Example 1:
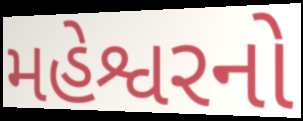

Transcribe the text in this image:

મહેશ્વરનો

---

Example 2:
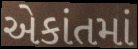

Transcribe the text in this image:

એકાંતમાં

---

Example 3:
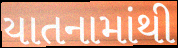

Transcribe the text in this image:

યાતનામાંથી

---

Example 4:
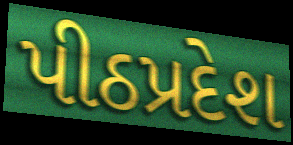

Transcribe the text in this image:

પીઠપ્રદેશ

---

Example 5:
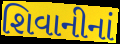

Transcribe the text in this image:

શિવાનીનાં